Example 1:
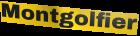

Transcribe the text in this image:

Montgolfier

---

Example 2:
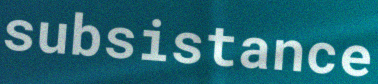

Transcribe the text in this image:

subsistance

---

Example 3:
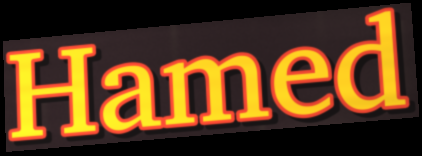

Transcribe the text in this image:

Hamed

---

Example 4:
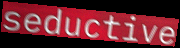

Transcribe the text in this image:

seductive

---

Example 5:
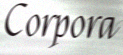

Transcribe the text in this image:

Corpora